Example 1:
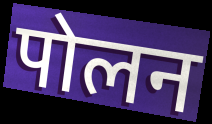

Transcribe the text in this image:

पोलन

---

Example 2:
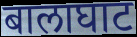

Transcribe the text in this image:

बालाघाट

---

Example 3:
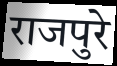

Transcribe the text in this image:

राजपुरे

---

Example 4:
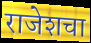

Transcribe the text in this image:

राजेशचा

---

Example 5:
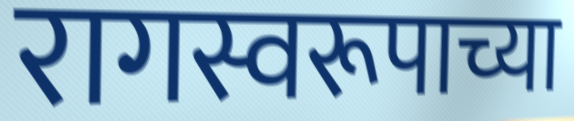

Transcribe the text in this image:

रागस्वरूपाच्या